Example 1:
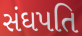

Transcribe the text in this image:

સંઘપતિ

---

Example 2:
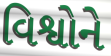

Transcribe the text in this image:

વિશ્વોને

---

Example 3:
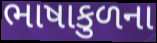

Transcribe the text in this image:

ભાષાકુળના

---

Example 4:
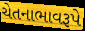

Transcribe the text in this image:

ચેતનાભાવરૂપે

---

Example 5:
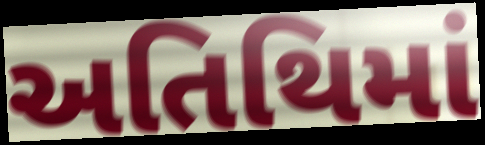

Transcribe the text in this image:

અતિથિમાં